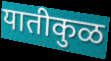
यातीकुळ